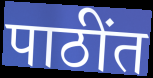
पाठींत